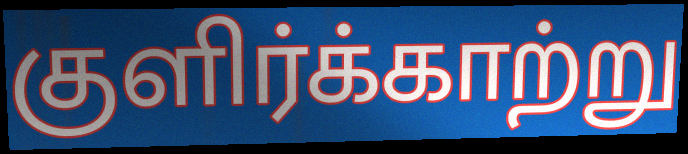
குளிர்க்காற்று